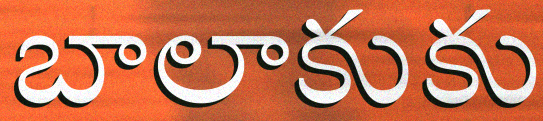
బాలాకుకు